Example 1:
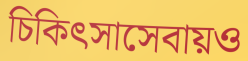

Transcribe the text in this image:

চিকিৎসাসেবায়ও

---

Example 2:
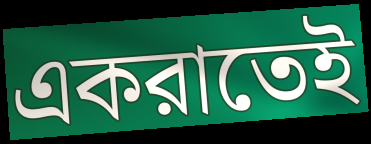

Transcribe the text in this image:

একরাতেই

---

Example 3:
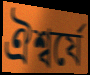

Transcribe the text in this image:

ঐশ্বর্যে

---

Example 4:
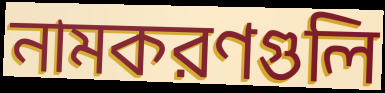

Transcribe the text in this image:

নামকরণগুলি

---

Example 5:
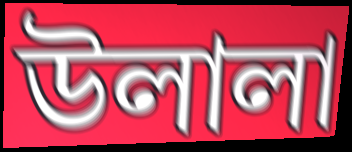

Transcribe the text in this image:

উলালা